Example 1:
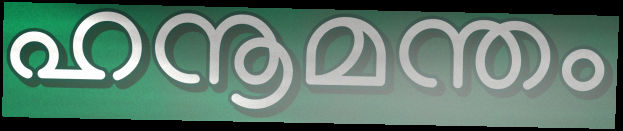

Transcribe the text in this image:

ഹനൂമന്തം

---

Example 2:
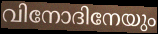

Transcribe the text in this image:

വിനോദിനേയും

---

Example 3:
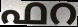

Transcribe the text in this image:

ഫറ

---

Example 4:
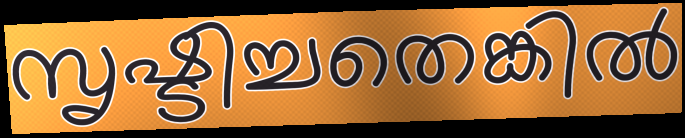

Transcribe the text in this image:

സൃഷ്ടിച്ചതെങ്കിൽ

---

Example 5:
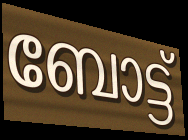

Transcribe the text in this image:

ബോട്ട്